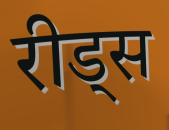
रीड्स